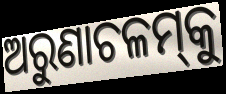
ଅରୁଣାଚଳମ୍‌କୁ